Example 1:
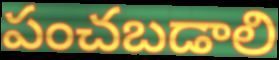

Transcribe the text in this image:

పంచబడాలి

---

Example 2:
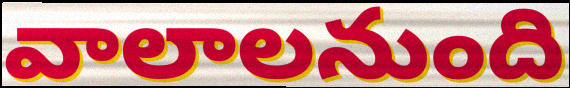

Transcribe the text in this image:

వాలాలనుంది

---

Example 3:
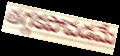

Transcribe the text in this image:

తగ్గకపోవడమే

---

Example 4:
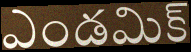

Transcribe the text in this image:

ఎండమిక్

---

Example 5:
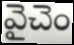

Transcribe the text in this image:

వైచెం